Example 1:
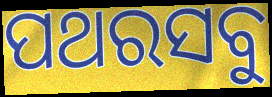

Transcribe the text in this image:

ପଥରସବୁ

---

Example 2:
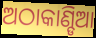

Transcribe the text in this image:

ଅଠାକାଣ୍ଡିଆ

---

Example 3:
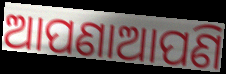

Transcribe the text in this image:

ଆପଣାଆପଣି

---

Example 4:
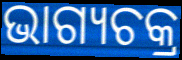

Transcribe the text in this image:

ଭାଗ୍ୟଚକ୍ର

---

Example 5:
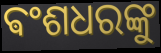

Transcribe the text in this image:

ଵଂଶଧରଙ୍କୁ